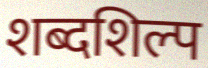
शब्दशिल्प